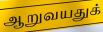
ஆறுவயதுக்